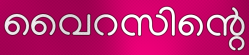
വൈറസിന്റെ